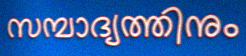
സമ്പാദ്യത്തിനും